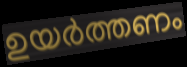
ഉയർത്തണം